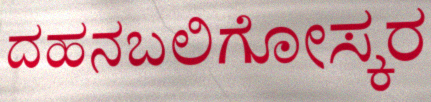
ದಹನಬಲಿಗೋಸ್ಕರ